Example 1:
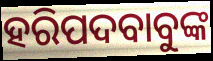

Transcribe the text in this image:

ହରିପଦବାବୁଙ୍କ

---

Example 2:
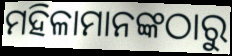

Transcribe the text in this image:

ମହିଳାମାନଙ୍କଠାରୁ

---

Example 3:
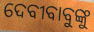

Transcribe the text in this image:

ଦେବୀବାବୁଙ୍କୁ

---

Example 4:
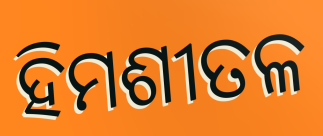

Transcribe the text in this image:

ହିମଶୀତଳ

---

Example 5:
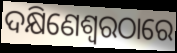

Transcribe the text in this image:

ଦକ୍ଷିଣେଶ୍ୱରଠାରେ